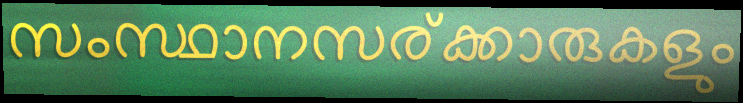
സംസ്ഥാനസര്ക്കാരുകളും